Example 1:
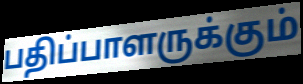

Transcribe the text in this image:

பதிப்பாளருக்கும்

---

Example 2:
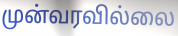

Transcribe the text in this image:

முன்வரவில்லை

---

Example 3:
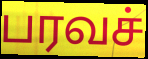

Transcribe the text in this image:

பரவச்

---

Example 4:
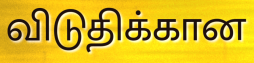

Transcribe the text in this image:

விடுதிக்கான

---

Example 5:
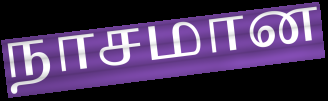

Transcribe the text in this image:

நாசமான